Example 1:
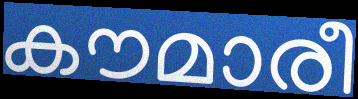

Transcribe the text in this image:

കൗമാരീ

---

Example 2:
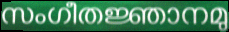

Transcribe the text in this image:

സംഗീതജ്ഞാനമു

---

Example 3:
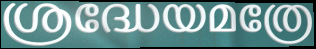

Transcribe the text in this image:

ശ്രദ്ധേയമത്രേ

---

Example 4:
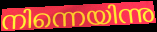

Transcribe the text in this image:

നിന്നെയിന്നു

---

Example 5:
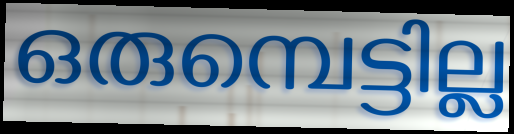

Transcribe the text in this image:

ഒരുമ്പെട്ടില്ല